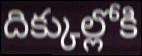
దిక్కుల్లోకి